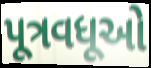
પૂત્રવધૂઓ